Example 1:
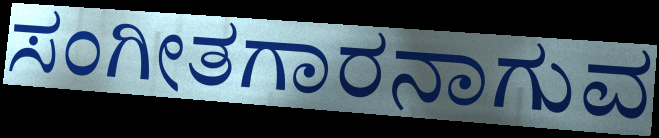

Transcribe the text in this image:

ಸಂಗೀತಗಾರನಾಗುವ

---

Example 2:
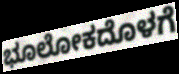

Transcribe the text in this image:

ಭೂಲೋಕದೊಳಗೆ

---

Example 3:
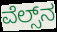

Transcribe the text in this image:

ವೆಲ್ಸ್‌ನ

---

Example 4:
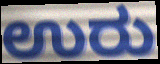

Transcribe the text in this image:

ಉರು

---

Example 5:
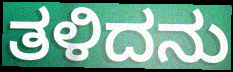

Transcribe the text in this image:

ತಳಿದನು